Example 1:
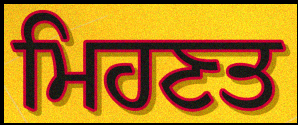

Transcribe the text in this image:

ਮਿਹਣਤ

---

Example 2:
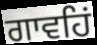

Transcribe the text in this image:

ਗਾਵਹਿਂ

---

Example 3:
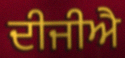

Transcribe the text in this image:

ਦੀਜੀਐ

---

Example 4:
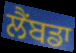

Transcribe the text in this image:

ਲੈਂਬਡਾ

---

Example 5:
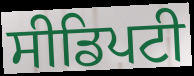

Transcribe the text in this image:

ਸੀਡਿਪਟੀ